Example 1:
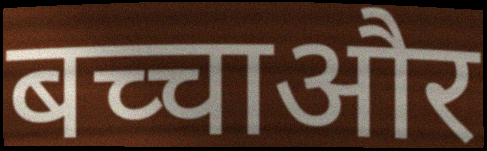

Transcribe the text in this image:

बच्चाऔर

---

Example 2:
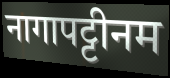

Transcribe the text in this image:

नागापट्टीनम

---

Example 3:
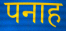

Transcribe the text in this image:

पनाह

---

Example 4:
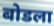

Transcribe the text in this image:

बोडला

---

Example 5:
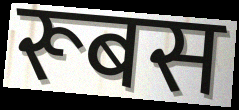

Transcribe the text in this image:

रूबस